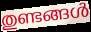
തുണ്ടങ്ങൾ